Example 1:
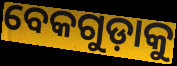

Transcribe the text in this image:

ବେକଗୁଡ଼ାକୁ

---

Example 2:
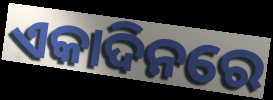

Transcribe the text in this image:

ଏକାଦିନରେ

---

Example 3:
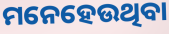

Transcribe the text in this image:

ମନେହେଉଥିବା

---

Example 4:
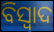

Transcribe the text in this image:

ବିସ୍ଵାଦ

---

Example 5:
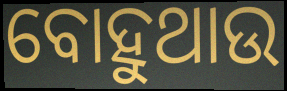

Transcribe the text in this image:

ବୋହୁଥାଉ